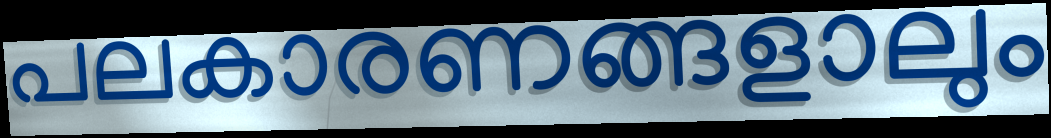
പലകാരണങ്ങളാലും